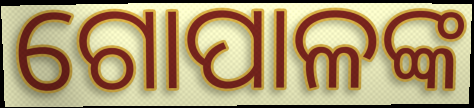
ଗୋପାଳଙ୍କ